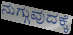
ನುಗ್ಗುವುದಕ್ಕೆ